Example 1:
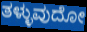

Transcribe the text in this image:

ತಳ್ಳುವುದೋ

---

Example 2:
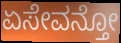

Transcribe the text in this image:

ಏಸೇವನ್ತೋ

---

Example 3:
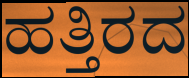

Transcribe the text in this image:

ಹತ್ತಿರದ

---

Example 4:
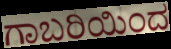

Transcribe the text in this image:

ಗಾಬರಿಯಿಂದ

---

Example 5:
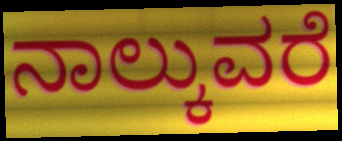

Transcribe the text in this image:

ನಾಲ್ಕುವರೆ